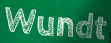
Wundt